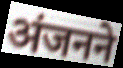
अंजनने